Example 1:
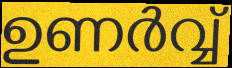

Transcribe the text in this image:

ഉണർവ്വ്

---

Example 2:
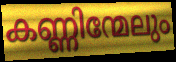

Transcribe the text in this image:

കണ്ണിന്മേലും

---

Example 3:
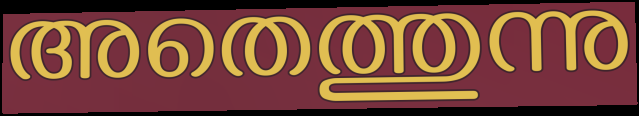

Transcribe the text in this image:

അതെത്തുന്നു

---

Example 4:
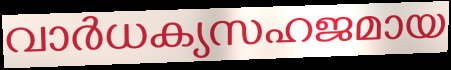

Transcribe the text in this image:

വാർധക്യസഹജമായ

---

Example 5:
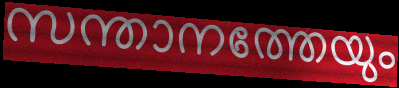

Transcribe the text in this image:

സന്താനത്തേയും